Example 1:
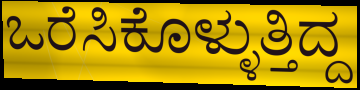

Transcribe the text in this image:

ಒರೆಸಿಕೊಳ್ಳುತ್ತಿದ್ದ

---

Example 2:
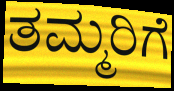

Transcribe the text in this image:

ತಮ್ಮರಿಗೆ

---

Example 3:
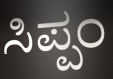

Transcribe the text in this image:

ಸಿಪ್ಪಂ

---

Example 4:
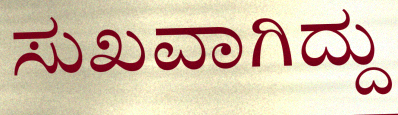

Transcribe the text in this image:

ಸುಖವಾಗಿದ್ದು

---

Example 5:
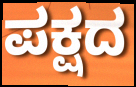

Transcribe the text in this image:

ಪಕ್ಷದ